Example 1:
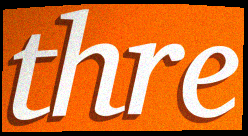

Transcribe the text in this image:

thre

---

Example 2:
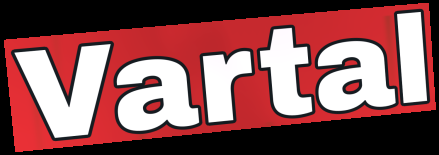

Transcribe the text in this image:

Vartal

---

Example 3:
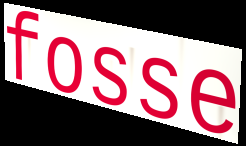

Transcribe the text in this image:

fosse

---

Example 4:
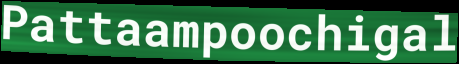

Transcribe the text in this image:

Pattaampoochigal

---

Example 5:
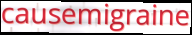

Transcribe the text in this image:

causemigraine